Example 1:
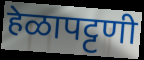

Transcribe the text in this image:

हेळापट्टणी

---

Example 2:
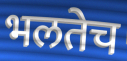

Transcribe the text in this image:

भलतेच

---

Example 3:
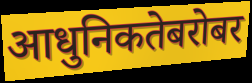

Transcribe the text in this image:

आधुनिकतेबरोबर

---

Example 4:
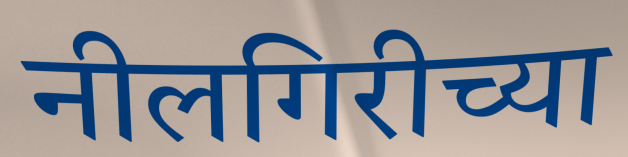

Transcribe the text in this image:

नीलगिरीच्या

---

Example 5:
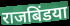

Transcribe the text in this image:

राजबिंडया